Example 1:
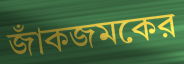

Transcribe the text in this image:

জাঁকজমকের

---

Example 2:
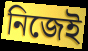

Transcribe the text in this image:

নিজেই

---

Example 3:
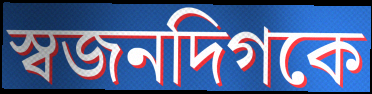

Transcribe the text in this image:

স্বজনদিগকে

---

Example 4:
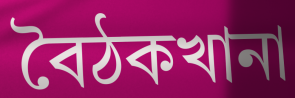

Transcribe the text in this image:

বৈঠকখানা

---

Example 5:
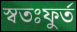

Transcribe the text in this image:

স্বতঃফুর্ত